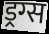
ड्रग्‍स